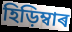
হিড়িম্বাৰ